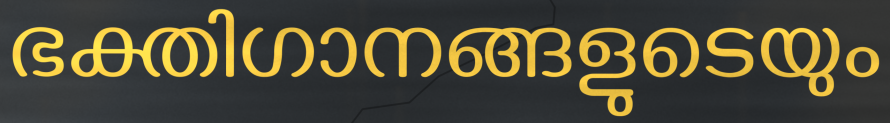
ഭക്തിഗാനങ്ങളുടെയും